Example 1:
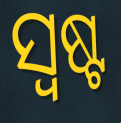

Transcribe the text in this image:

ସ୍ୱଷ୍ଟ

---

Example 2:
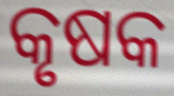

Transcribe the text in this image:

କୃଷକ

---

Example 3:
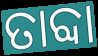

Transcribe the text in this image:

ତାବ୍ଦା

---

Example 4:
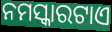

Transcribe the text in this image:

ନମସ୍କାରଟାଏ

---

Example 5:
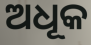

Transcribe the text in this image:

ଅଧୂକ